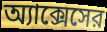
অ্যাক্সেসের